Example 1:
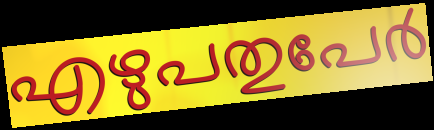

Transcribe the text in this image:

എഴുപതുപേർ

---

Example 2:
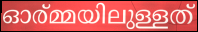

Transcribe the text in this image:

ഓര്മ്മയിലുള്ളത്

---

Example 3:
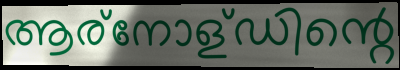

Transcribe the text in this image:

ആര്നോള്ഡിന്റെ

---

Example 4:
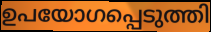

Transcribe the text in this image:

ഉപയോഗപ്പെടുത്തി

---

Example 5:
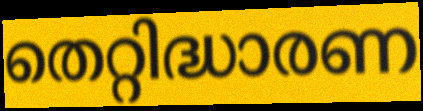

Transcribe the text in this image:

തെറ്റിദ്ധാരണ